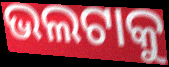
ଭଲଟାକୁ